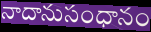
నాదానుసంధానం